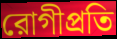
রোগীপ্রতি